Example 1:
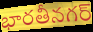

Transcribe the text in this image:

భారతీనగర్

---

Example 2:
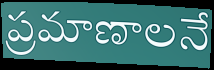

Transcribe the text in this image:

ప్రమాణాలనే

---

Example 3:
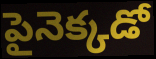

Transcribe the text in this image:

పైనెక్కడో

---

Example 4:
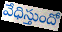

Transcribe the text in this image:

వేధిస్తుందో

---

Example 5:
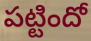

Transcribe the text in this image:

పట్టిందో